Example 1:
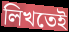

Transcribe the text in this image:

লিখতেই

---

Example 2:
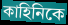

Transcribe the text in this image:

কাহিনিকে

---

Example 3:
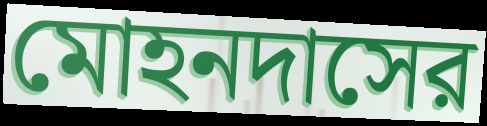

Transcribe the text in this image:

মোহনদাসের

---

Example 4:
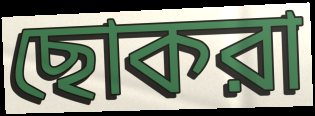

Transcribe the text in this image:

ছোকরা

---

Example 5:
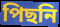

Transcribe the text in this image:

পিছনি